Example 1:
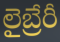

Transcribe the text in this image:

లైబ్రేరీ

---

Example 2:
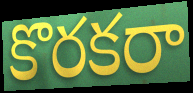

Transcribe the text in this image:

కొరకరా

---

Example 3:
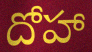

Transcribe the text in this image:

దోహా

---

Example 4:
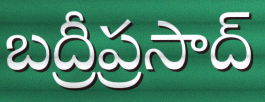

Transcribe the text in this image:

బద్రీప్రసాద్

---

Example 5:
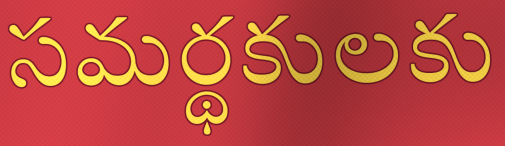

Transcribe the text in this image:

సమర్థకులకు